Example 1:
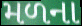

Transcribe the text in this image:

મળના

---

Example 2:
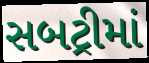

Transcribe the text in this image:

સબટ્રીમાં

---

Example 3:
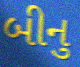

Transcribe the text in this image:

બીનુ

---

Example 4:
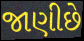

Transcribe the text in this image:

જાણીછે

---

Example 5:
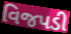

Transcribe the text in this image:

વિજપડી